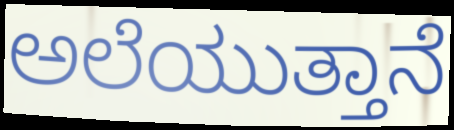
ಅಲೆಯುತ್ತಾನೆ